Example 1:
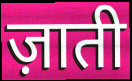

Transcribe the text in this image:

ज़ाती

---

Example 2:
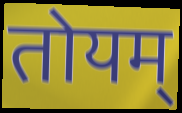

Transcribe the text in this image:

तोयम्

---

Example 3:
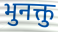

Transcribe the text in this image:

भुनक्तु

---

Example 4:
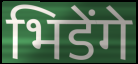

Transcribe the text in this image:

भिडेंगे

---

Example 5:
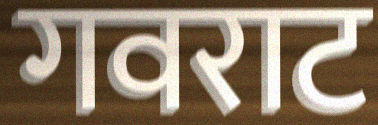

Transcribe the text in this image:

गवराट